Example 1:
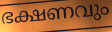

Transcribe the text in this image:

ഭക്ഷണവും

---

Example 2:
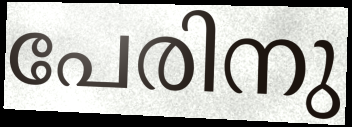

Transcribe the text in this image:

പേരിനു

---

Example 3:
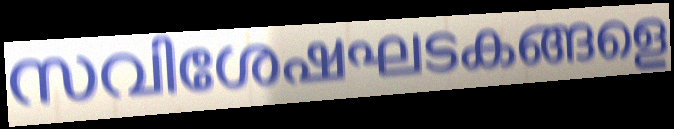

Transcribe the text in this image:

സവിശേഷഘടകങ്ങളെ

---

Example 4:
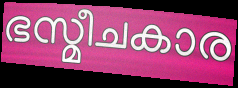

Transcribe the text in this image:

ഭസ്മീചകാര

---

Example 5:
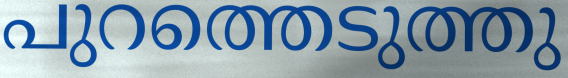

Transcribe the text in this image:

പുറത്തെടുത്തു